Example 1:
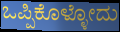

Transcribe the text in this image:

ಒಪ್ಪಿಕೊಳ್ಳೋದು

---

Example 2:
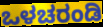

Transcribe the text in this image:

ಒಳಚರಂಡಿ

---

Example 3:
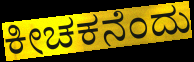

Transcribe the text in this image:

ಕೀಚಕನೆಂದು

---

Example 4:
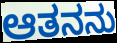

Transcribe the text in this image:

ಆತನನು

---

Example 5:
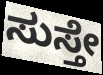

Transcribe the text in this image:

ಸುಸ್ತೇ